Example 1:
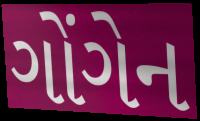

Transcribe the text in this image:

ગોંગેન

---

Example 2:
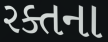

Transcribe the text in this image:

રક્તના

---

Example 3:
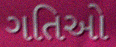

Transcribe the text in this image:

ગતિઓ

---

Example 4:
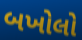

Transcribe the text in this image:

બખોલો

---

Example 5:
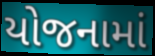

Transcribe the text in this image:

યોજનામાં